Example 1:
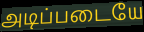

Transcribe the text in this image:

அடிப்படையே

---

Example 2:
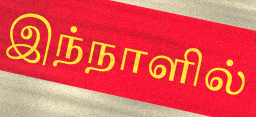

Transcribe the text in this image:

இந்நாளில்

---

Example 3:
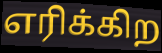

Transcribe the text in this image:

எரிக்கிற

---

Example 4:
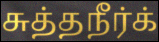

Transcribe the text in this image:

சுத்தநீர்க்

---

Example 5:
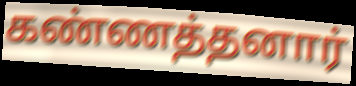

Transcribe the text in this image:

கண்ணத்தனார்